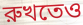
রুখতেও